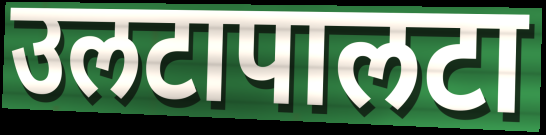
उलटापालटा